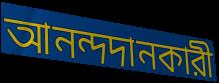
আনন্দদানকারী